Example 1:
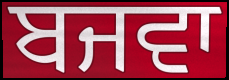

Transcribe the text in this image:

ਬਜਵਾ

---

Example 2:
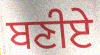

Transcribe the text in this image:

ਬਣੀਏ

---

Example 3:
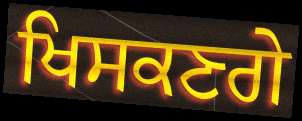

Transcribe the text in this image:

ਖਿਸਕਣਗੇ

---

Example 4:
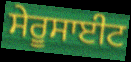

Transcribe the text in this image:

ਸੇਰੂਸਾਈਟ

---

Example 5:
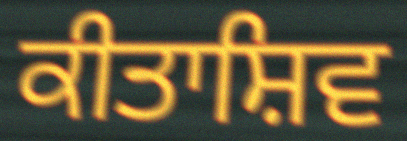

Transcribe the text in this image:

ਕੀਤਾਸ਼ਿਵ